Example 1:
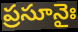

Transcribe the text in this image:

ప్రసూనైః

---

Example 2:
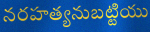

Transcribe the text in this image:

నరహత్యనుబట్టియు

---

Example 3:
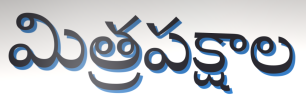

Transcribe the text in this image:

మిత్రపక్షాల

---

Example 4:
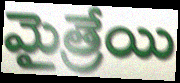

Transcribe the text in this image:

మైత్రేయి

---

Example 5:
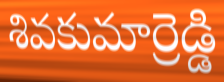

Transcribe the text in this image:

శివకుమార్రెడ్డి